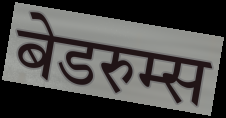
बेडरुम्स